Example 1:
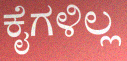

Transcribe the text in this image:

ಕೈಗಳಿಲ್ಲ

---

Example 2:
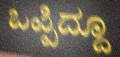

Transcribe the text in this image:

ಒಪ್ಪಿದ್ದೂ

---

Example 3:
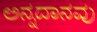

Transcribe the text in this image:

ಅನ್ನದಾನವು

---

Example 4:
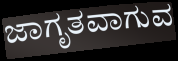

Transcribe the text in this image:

ಜಾಗೃತವಾಗುವ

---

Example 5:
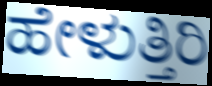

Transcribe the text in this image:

ಹೇಳುತ್ತಿರಿ